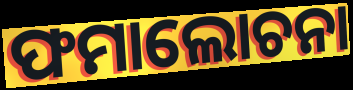
ଫମାଲୋଚନା